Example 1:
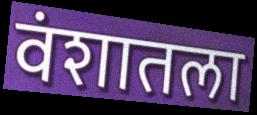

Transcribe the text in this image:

वंशातला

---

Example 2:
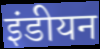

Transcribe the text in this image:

इंडीयन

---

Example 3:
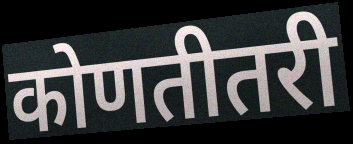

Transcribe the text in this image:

कोणतीतरी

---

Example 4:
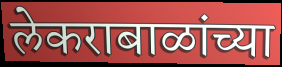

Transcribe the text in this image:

लेकराबाळांच्या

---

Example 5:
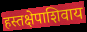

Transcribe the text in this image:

हस्तक्षेपाशिवाय